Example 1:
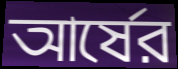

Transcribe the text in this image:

আর্ষের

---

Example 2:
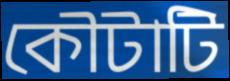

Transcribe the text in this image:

কৌটাটি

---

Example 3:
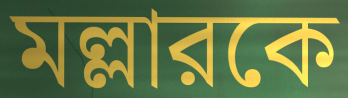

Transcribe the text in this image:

মল্লারকে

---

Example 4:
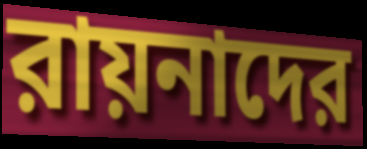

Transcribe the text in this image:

রায়নাদের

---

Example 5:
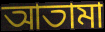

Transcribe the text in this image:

আতামা